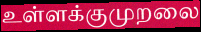
உள்ளக்குமுறலை